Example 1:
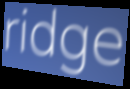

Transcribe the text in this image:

ridge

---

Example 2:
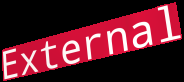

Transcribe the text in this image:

External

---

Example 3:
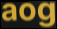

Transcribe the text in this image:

aog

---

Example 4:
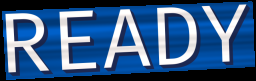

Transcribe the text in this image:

READY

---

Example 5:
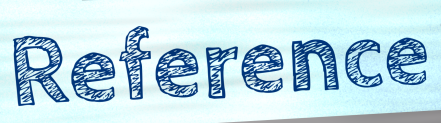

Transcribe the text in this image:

Reference